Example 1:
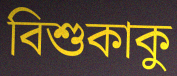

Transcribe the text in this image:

বিশুকাকু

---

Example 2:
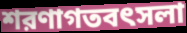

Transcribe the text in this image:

শরণাগতবৎসলা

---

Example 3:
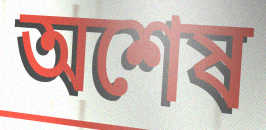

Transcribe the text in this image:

অশেষ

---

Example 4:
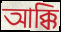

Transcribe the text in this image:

আক্কি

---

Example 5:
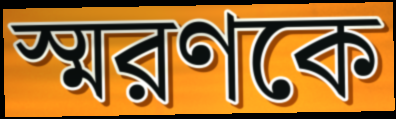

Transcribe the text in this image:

স্মরণকে